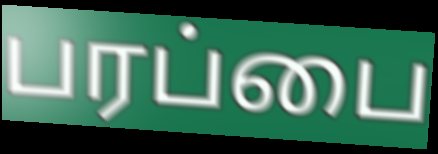
பரப்பை